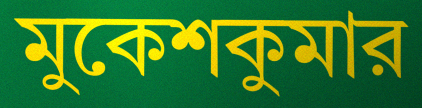
মুকেশকুমার